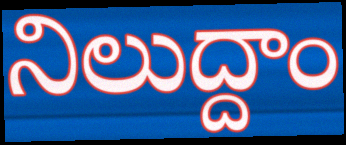
నిలుద్దాం